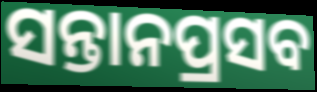
ସନ୍ତାନପ୍ରସବ